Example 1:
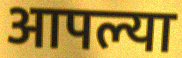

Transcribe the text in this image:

आपल्या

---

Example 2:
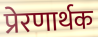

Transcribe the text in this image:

प्रेरणार्थक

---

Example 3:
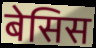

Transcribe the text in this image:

बेसिस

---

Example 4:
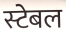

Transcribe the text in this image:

स्‍टेबल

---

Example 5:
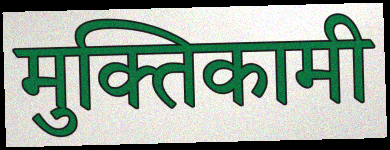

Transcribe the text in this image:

मुक्तिकामी